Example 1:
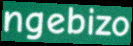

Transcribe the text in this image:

ngebizo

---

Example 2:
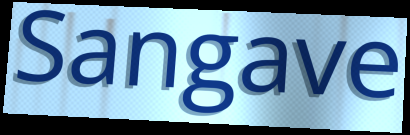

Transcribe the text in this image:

Sangave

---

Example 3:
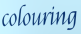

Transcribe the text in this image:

colouring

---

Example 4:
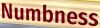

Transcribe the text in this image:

Numbness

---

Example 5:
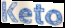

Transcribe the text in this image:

Keto